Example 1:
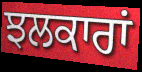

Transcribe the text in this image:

ਝਲਕਾਰਾਂ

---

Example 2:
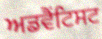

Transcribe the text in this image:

ਅਡਵੈਂਟਿਸਟ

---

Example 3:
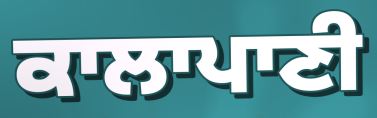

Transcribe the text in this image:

ਕਾਲਾਪਾਣੀ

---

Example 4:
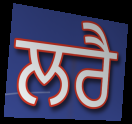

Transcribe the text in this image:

ਲਰੈ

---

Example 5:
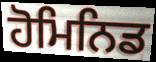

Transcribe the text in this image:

ਹੋਮਿਨਿਡ